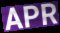
APR